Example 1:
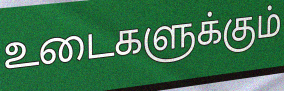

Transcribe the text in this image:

உடைகளுக்கும்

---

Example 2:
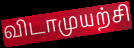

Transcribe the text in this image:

விடாமுயற்சி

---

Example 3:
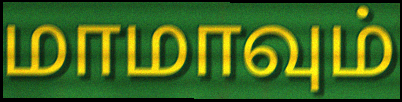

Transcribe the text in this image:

மாமாவும்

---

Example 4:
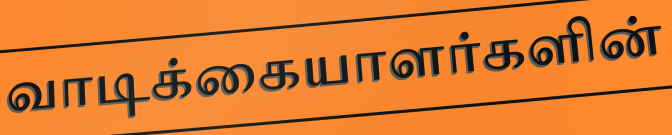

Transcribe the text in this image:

வாடிக்கையாளர்களின்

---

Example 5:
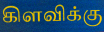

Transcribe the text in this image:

கிளவிக்கு